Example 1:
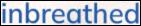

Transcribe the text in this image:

inbreathed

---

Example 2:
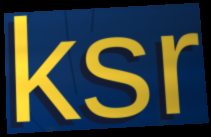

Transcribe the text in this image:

ksr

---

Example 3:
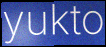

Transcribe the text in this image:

yukto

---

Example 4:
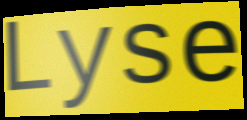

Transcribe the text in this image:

Lyse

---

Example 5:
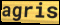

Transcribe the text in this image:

agris